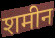
शमीन